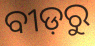
ବୀଡ଼ରୁ